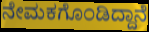
ನೇಮಕಗೊಂಡಿದ್ದಾನೆ